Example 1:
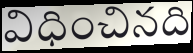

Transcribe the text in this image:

విధించినది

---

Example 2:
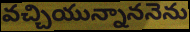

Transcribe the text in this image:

వచ్చియున్నాననెను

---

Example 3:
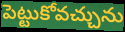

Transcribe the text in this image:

పెట్టుకోవచ్చును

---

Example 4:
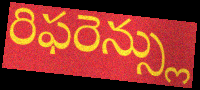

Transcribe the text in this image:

రిఫరెన్స్లు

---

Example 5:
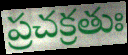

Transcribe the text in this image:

ప్రచక్రతుః